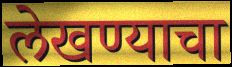
लेखण्याचा